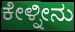
ಕೇಳ್ನೀನು